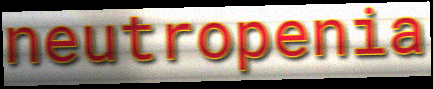
neutropenia